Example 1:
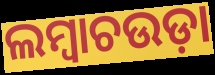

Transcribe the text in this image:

ଲମ୍ବାଚଉଡ଼ା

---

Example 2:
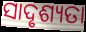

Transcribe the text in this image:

ସାଦୃଶ୍ୟତା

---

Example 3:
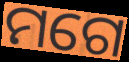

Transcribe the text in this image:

ମଗେ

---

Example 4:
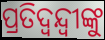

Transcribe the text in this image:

ପ୍ରତିଦ୍ବନ୍ଦ୍ବୀଙ୍କୁ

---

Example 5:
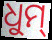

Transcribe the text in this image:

ଧୁମ୍